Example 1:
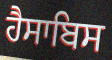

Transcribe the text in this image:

ਹੈਸਾਬਿਸ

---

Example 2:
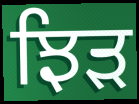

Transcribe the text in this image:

ਝਿੜ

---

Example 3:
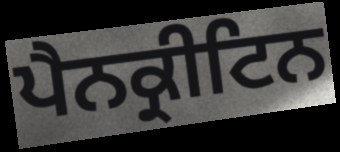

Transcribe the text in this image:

ਪੈਨਕ੍ਰੀਟਿਨ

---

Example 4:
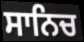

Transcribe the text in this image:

ਸਾਨਿਚ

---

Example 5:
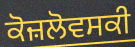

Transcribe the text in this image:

ਕੋਜ਼ਲੋਵਸਕੀ